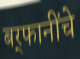
बर्फानींचे